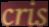
cris